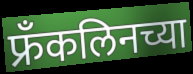
फ्रँकलिनच्या